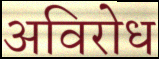
अविरोध